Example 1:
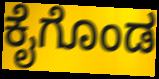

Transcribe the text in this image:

ಕೈಗೊಂಡ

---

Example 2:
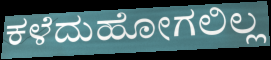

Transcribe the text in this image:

ಕಳೆದುಹೋಗಲಿಲ್ಲ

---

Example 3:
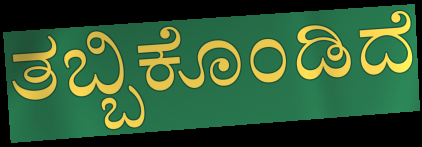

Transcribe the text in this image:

ತಬ್ಬಿಕೊಂಡಿದೆ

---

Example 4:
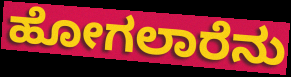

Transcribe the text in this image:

ಹೋಗಲಾರೆನು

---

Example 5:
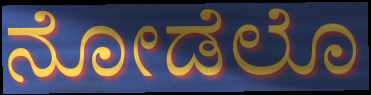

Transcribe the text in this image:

ನೋಡೆಲೊ